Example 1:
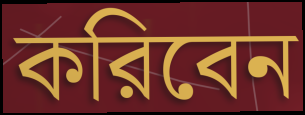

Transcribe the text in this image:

করিবেন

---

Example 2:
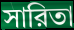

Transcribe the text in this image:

সারিতা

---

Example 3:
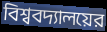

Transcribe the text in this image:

বিশ্ববদ্যালয়ের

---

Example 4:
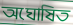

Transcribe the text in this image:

অঘোষিত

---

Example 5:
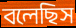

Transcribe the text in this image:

বলেছিস